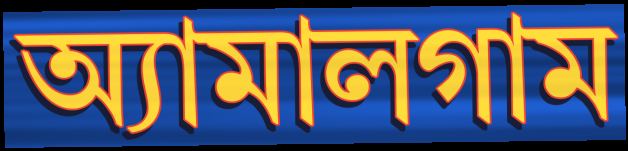
অ্যামালগাম